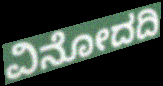
ವಿನೋದದಿ